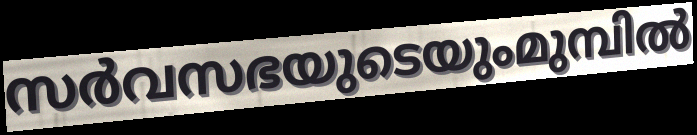
സർവസഭയുടെയുംമുമ്പിൽ